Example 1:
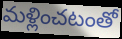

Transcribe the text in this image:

మళ్లించటంతో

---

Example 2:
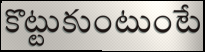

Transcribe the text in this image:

కొట్టుకుంటుంటే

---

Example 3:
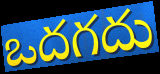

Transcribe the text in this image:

ఒదగదు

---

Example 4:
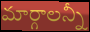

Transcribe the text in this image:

మార్గాలన్నీ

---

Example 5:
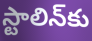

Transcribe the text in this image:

స్టాలిన్‌కు